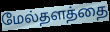
மேல்தளத்தை